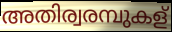
അതിര്വരമ്പുകള്